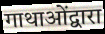
गाथाओंद्वारा